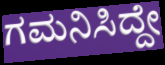
ಗಮನಿಸಿದ್ದೇ